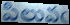
పిలువఁ